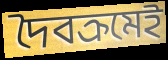
দৈবক্রমেই